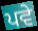
ਪਵੇ